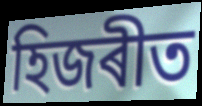
হিজৰীত